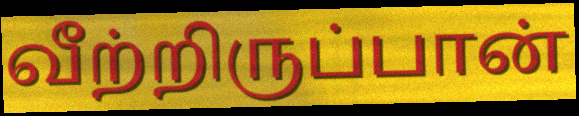
வீற்றிருப்பான்